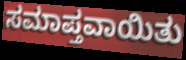
ಸಮಾಪ್ತವಾಯಿತು